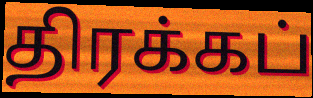
திரக்கப்